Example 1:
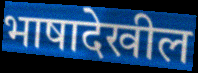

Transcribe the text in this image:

भाषादेखील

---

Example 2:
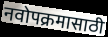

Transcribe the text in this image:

नवोपक्रमासाठी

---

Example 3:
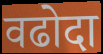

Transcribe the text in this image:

वढोदा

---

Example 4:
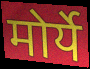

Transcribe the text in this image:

मोर्ये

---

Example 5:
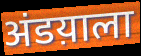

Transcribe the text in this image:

अंडय़ाला